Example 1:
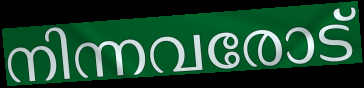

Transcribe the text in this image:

നിന്നവരോട്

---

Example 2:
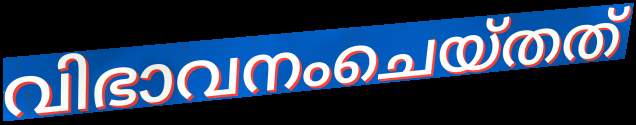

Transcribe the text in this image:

വിഭാവനംചെയ്തത്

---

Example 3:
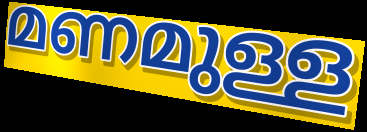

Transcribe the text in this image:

മണമുള്ള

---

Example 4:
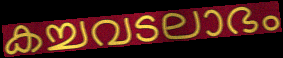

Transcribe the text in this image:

കച്ചവടലാഭം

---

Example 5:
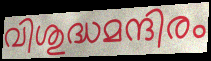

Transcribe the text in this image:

വിശുദ്ധമന്ദിരം